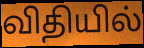
விதியில்